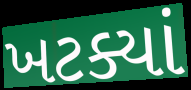
ખટક્યાં